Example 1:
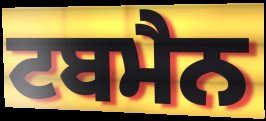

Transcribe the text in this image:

ਟਬਮੈਨ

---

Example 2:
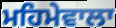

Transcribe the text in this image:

ਮਹਿਮੇਵਾਲਾ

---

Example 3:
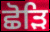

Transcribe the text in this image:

ਛੋੜਿ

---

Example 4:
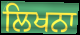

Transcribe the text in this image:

ਲਿਖਨਾ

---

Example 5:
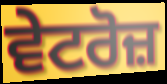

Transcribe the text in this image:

ਵੇਟਰੋਜ਼